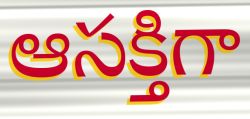
ఆసక్తిగా